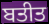
ਬਤੀਤ